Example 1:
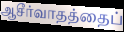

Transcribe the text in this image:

ஆசீர்வாதத்தைப்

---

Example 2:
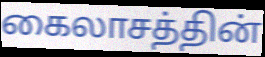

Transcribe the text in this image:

கைலாசத்தின்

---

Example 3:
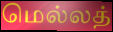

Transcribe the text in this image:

மெல்லத்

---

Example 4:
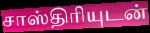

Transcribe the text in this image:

சாஸ்திரியுடன்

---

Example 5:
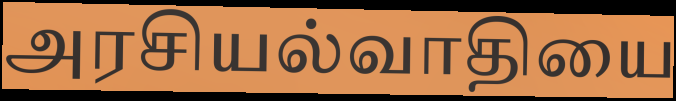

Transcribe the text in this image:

அரசியல்வாதியை